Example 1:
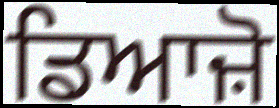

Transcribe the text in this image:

ਡਿਆਜ਼ੋ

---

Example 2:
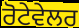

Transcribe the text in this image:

ਰੋਟੇਵੇਲਰ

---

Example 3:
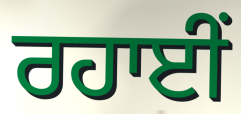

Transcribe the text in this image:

ਰਹਾਈਂ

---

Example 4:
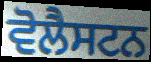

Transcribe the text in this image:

ਵੋਲੈਸਟਨ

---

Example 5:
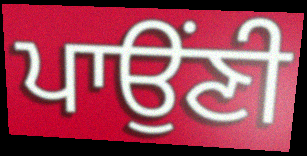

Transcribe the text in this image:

ਪਾਉਂਣੀ